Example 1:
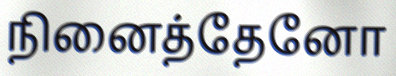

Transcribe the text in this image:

நினைத்தேனோ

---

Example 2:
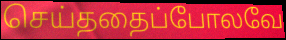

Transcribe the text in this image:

செய்ததைப்போலவே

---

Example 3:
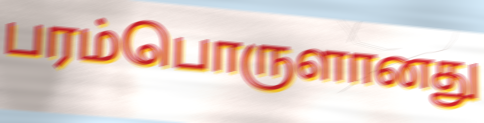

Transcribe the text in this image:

பரம்பொருளானது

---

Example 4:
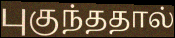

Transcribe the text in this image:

புகுந்ததால்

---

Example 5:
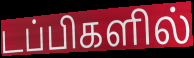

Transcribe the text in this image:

டப்பிகளில்